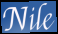
Nile